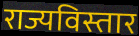
राज्यविस्तार